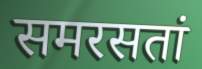
समरसतां